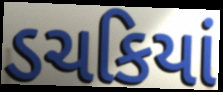
ડચકિયાં